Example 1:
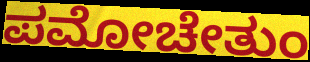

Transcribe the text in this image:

ಪಮೋಚೇತುಂ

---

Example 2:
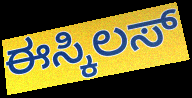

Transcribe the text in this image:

ಈಸ್ಕಿಲಸ್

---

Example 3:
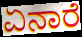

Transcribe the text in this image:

ಏನಾರೆ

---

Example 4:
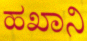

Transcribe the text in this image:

ಹಖಾನಿ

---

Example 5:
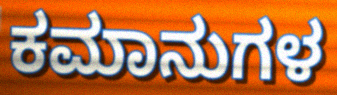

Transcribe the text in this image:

ಕಮಾನುಗಳ